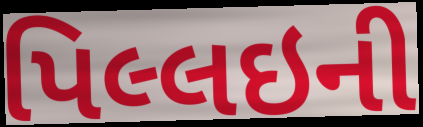
પિલ્લઇની